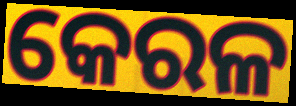
କେରଳ